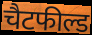
चैटफील्ड